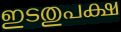
ഇടതുപക്ഷ